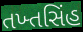
તખ્તસિંહ